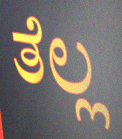
ತೆಲ್ಲ